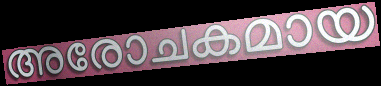
അരോചകമായ